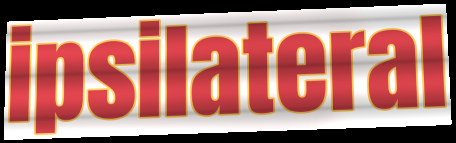
ipsilateral